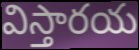
విస్తారయ